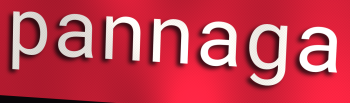
pannaga